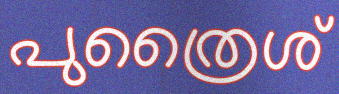
പുത്രൈശ്